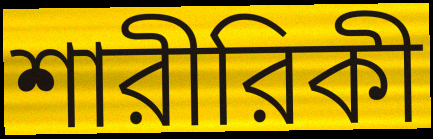
শারীরিকী